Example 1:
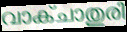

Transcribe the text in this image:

വാക്ചാതുരി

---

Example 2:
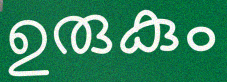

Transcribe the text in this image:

ഉരുകും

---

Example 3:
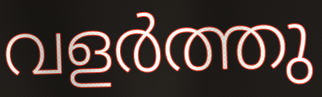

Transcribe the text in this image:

വളർത്തു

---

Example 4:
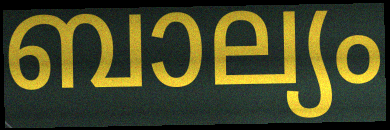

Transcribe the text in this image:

ബാല്യം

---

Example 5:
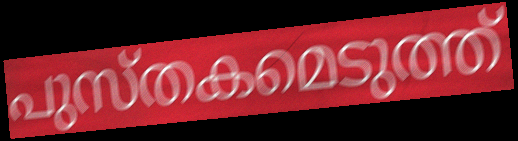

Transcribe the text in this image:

പുസ്തകമെടുത്ത്